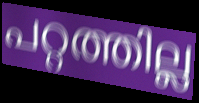
പറ്റത്തില്ല